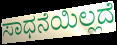
ಸಾಧನೆಯಿಲ್ಲದೆ